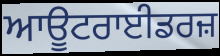
ਆਊਟਰਾਈਡਰਜ਼